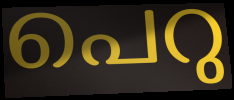
പെറു